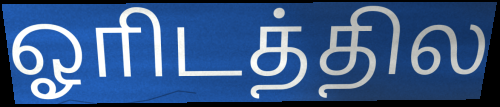
ஓரிடத்தில